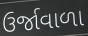
ઉર્જાવાળા